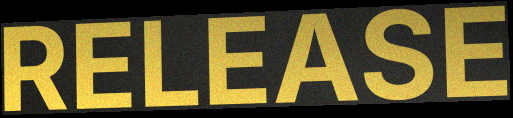
RELEASE